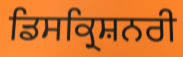
ਡਿਸਕ੍ਰਿਸ਼ਨਰੀ